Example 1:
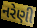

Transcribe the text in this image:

નરેણી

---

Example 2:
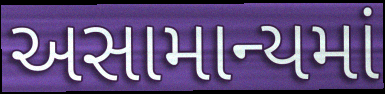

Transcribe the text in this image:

અસામાન્યમાં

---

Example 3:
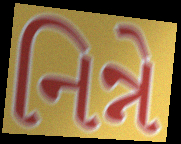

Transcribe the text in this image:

નિન્ને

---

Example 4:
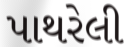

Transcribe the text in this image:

પાથરેલી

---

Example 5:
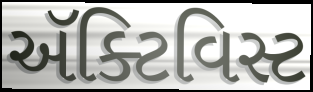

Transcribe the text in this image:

ઍક્ટિવિસ્ટ